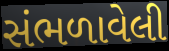
સંભળાવેલી